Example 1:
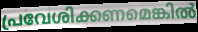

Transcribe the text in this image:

പ്രവേശിക്കണമെങ്കിൽ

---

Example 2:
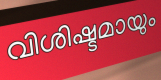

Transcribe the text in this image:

വിശിഷ്ടമായും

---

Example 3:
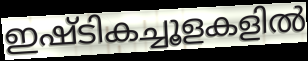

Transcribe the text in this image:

ഇഷ്ടികച്ചൂളകളിൽ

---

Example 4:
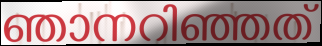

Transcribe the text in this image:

ഞാനറിഞ്ഞത്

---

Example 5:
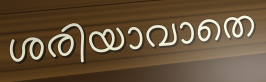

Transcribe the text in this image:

ശരിയാവാതെ